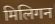
मिलिगन